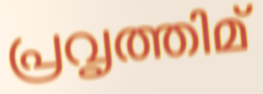
പ്രവൃത്തിമ്